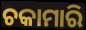
ଚକାମାରି